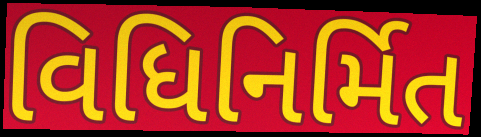
વિધિનિર્મિત